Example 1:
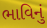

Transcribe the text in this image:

ભાવિનું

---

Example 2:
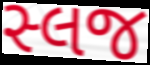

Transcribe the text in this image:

સ્લજ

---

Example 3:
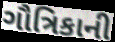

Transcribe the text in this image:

ગૌત્રિકાની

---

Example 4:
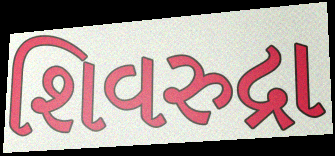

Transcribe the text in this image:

શિવરુદ્રા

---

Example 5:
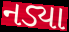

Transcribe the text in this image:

નડ્યા